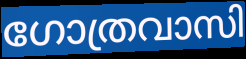
ഗോത്രവാസി